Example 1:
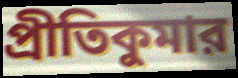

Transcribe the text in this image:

প্রীতিকুমার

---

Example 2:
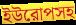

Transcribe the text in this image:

ইউরোপসহ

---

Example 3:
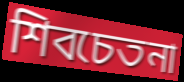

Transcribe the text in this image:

শিবচেতনা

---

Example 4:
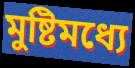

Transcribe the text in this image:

মুষ্টিমধ্যে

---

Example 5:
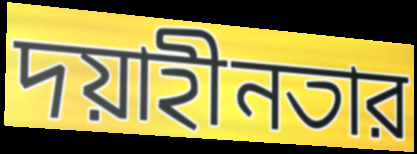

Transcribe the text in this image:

দয়াহীনতার